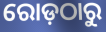
ରୋଡ଼ଠାରୁ